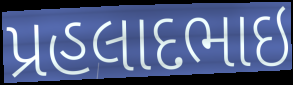
પ્રહલાદભાઇ